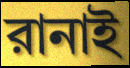
রানাই